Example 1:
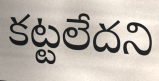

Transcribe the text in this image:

కట్టలేదని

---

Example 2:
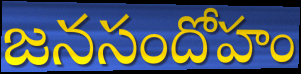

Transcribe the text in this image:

జనసందోహం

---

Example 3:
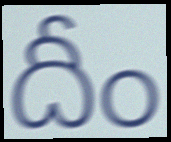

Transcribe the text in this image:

దీం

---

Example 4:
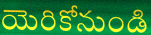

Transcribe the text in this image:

యెరికోనుండి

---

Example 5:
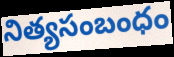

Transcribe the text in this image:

నిత్యసంబంధం